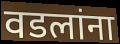
वडलांना